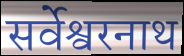
सर्वेश्वरनाथ